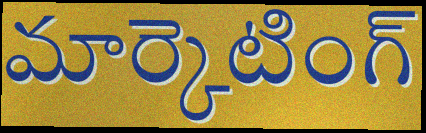
మార్కెటింగ్